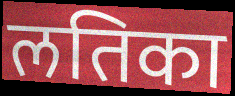
लतिका